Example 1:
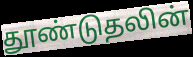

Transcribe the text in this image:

தூண்டுதலின்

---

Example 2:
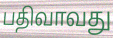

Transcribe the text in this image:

பதிவாவது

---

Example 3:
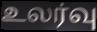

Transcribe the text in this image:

உலர்வு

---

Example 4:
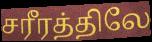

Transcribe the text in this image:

சரீரத்திலே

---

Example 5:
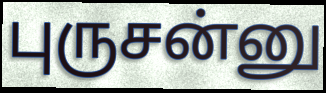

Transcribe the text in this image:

புருசன்னு